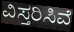
ವಿಸ್ತರಿಸಿವೆ